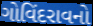
ગોવિંદરાવનો